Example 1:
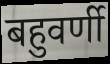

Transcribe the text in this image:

बहुवर्णी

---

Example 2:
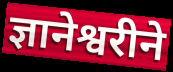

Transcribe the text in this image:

ज्ञानेश्वरीने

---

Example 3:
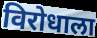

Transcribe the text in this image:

विरोधाला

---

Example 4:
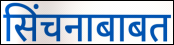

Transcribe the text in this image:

सिंचनाबाबत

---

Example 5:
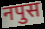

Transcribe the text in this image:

नपुस